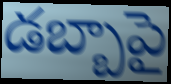
డబ్బాపై